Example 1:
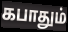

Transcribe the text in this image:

கபாதும்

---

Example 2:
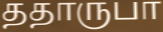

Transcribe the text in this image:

ததாருபா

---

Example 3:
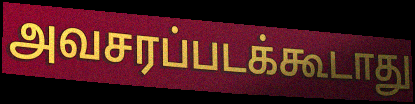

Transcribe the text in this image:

அவசரப்படக்கூடாது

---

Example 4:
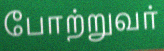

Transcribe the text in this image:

போற்றுவர்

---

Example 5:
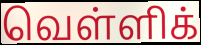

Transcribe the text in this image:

வெள்ளிக்